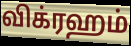
விக்ரஹம்